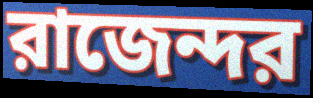
রাজেন্দর